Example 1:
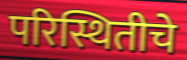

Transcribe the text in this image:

परिस्थितीचे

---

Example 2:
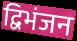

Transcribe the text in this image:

द्विभंजन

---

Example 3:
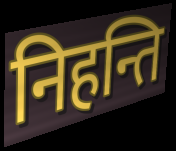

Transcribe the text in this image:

निहन्ति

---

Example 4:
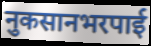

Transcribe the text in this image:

नुकसानभरपाई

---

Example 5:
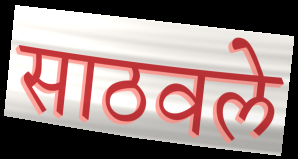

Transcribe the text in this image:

साठवले